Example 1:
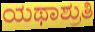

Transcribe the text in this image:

ಯಥಾಶ್ರುತಿ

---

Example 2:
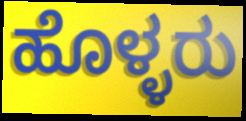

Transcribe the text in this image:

ಹೊಳ್ಳರು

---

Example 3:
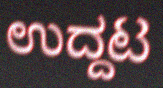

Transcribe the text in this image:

ಉದ್ದಟ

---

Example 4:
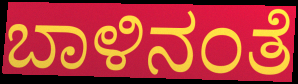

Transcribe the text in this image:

ಬಾಳಿನಂತೆ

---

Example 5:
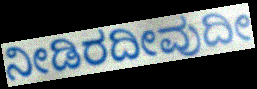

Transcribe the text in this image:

ನೀಡಿರದೀವುದೀ